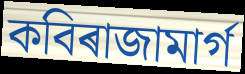
কবিৰাজামাৰ্গ